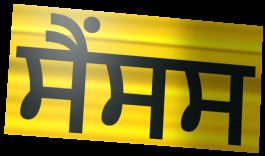
ਸੈਂਸਸ